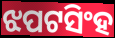
ଝପଟସିଂହ